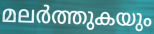
മലർത്തുകയും